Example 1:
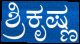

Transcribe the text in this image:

ಶ್ರಿಕೃಷ್ಣ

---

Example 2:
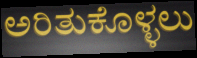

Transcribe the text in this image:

ಅರಿತುಕೊಳ್ಳಲು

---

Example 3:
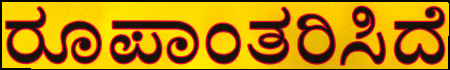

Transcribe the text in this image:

ರೂಪಾಂತರಿಸಿದೆ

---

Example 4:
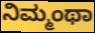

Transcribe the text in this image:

ನಿಮ್ಮಂಥಾ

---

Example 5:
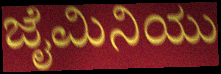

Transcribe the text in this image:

ಜೈಮಿನಿಯು